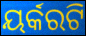
ୟର୍କରଟି